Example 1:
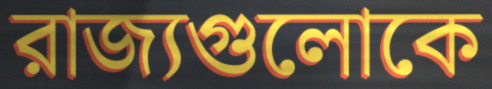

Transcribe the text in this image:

রাজ্যগুলোকে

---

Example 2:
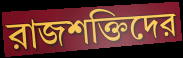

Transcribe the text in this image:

রাজশক্তিদের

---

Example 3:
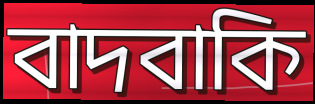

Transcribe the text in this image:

বাদবাকি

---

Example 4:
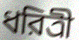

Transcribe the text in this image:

ধরিত্রী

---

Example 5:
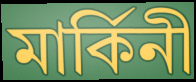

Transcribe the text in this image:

মার্কিনী